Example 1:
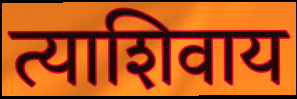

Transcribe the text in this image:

त्याशिवाय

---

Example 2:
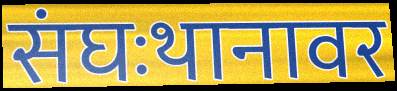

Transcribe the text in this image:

संघःथानावर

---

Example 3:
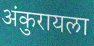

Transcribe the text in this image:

अंकुरायला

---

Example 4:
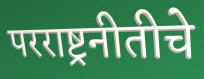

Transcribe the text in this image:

परराष्ट्रनीतीचे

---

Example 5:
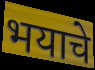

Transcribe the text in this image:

भयाचे